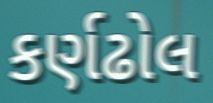
કર્ણઢોલ